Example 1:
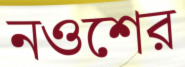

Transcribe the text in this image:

নওশের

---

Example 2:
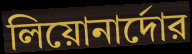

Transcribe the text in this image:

লিয়োনার্দোর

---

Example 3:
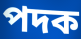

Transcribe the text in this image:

পদক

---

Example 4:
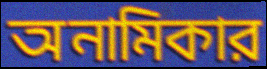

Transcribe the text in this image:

অনামিকার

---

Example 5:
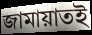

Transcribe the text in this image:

জামায়াতই